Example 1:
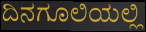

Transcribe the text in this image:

ದಿನಗೂಲಿಯಲ್ಲಿ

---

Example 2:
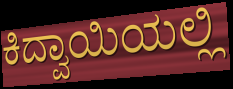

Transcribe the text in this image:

ಕಿದ್ವಾಯಿಯಲ್ಲಿ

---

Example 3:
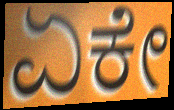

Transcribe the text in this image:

ಏಕೇ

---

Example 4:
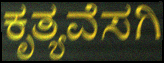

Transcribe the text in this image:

ಕೃತ್ಯವೆಸಗಿ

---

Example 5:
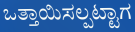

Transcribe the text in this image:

ಒತ್ತಾಯಿಸಲ್ಪಟ್ಟಾಗ